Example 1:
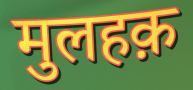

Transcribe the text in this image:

मुलहक़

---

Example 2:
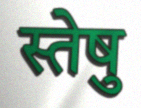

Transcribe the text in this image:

स्तेषु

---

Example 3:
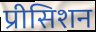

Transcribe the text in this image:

प्रीसिशन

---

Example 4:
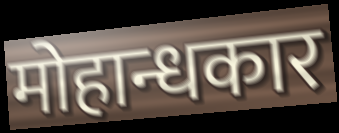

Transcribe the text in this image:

मोहान्धकार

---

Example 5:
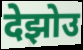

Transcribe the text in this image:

देझोउ